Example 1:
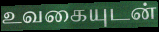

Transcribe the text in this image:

உவகையுடன்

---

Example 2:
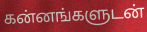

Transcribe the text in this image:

கன்னங்களுடன்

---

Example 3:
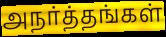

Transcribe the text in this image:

அநர்த்தங்கள்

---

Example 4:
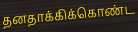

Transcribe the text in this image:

தனதாக்கிக்கொண்ட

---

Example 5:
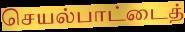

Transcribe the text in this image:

செயல்பாட்டைத்